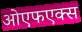
ओएफएक्स